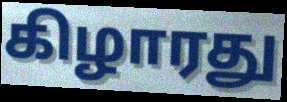
கிழாரது